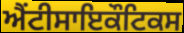
ਐਂਟੀਸਾਇਕੌਟਿਕਸ